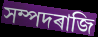
সম্পদৰাজি